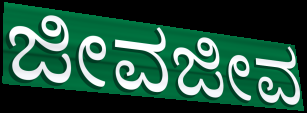
ಜೀವಜೀವ